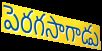
పెరగసాగాడు